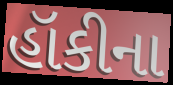
હૉકીના